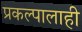
प्रकल्पालाही